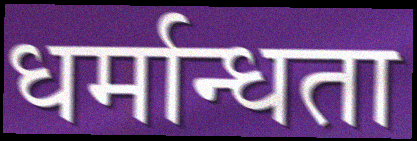
धर्मान्धता